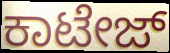
ಕಾಟೇಜ್